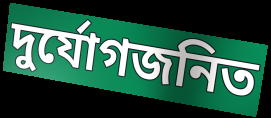
দুর্যোগজনিত